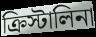
ক্রিস্টালিনা